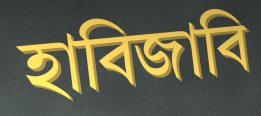
হাবিজাবি